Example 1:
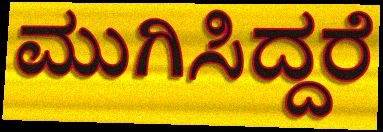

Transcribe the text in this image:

ಮುಗಿಸಿದ್ದರೆ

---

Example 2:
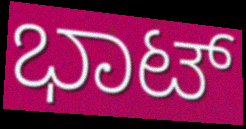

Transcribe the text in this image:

ಭಾಟ್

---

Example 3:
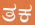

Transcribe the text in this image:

ತಕ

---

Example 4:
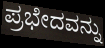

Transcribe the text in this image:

ಪ್ರಭೇದವನ್ನು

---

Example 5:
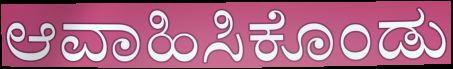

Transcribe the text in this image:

ಆವಾಹಿಸಿಕೊಂಡು